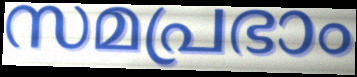
സമപ്രഭാം